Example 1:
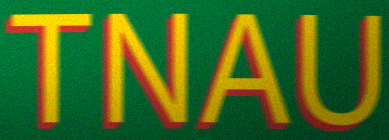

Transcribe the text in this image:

TNAU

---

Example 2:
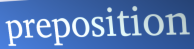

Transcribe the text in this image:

preposition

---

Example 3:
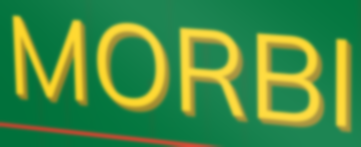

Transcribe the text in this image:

MORBI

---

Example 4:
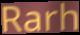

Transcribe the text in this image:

Rarh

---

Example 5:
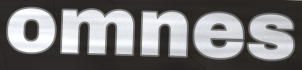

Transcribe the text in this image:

omnes